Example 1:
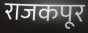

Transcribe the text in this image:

राजकपूर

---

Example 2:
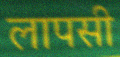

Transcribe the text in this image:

लापसी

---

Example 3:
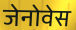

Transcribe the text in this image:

जेनोवेस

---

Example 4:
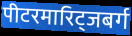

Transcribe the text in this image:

पीटरमारिट्जबर्ग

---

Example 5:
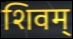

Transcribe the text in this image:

शिवम्